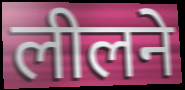
लीलने